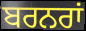
ਬਰਨਰਾਂ